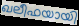
ഖലീഫയായി